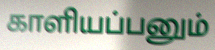
காளியப்பனும்